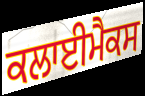
ਕਲਾਈਮੈਕਸ